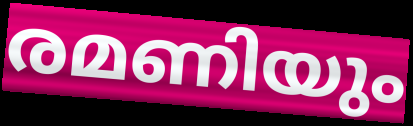
രമണിയും